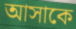
আসাকে